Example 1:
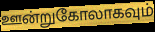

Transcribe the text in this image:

ஊன்றுகோலாகவும்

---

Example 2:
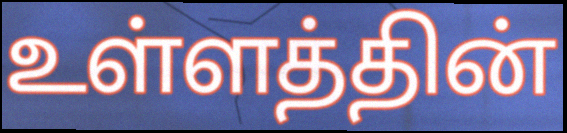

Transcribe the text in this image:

உள்ளத்தின்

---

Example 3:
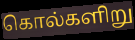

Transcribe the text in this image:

கொல்களிறு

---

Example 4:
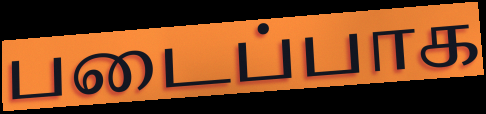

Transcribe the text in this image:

படைப்பாக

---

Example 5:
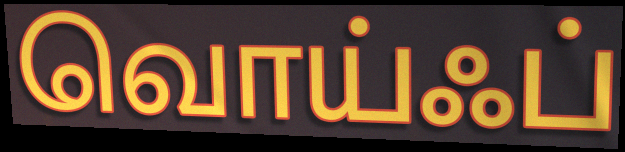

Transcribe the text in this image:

வொய்ஃப்